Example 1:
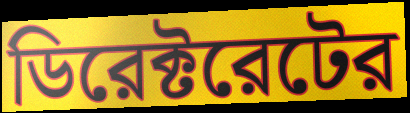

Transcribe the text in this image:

ডিরেক্টরেটের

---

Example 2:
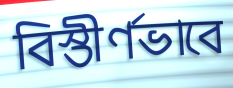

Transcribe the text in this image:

বিস্তীর্ণভাবে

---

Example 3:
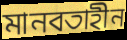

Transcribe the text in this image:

মানবতাহীন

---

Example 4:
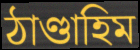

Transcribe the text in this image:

ঠাণ্ডাহিম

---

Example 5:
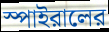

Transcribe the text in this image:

স্পাইরালের